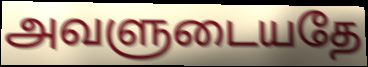
அவளுடையதே